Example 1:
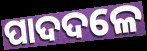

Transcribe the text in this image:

ପାଦଦଳେ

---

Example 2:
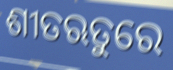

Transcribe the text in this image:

ଶୀତଋତୁରେ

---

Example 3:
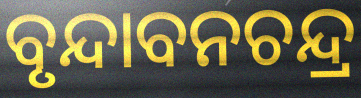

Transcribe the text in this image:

ବୃନ୍ଦାବନଚନ୍ଦ୍ର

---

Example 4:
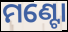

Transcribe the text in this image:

ମଣ୍ଟୋ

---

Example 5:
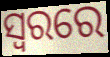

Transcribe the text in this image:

ସ୍ୱରରେ